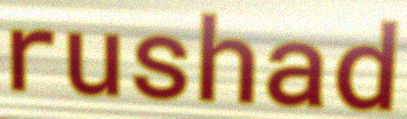
rushad